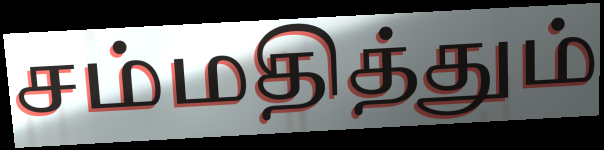
சம்மதித்தும்